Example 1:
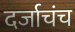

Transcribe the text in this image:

दर्जाचंच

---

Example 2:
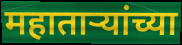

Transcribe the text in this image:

महाताऱ्यांच्या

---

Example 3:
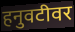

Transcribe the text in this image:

हनुवटीवर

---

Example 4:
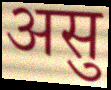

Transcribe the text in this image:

असु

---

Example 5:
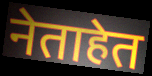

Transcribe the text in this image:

नेताहेत